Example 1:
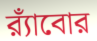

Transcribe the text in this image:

র‍্যাঁবোর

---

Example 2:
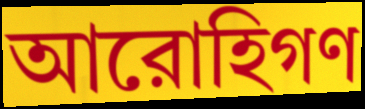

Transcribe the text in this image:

আরোহিগণ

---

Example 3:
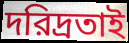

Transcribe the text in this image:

দরিদ্রতাই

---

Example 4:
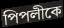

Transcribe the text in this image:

পিপলীকে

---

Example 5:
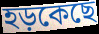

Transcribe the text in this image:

হড়কেছে